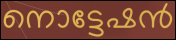
നൊട്ടേഷൻ